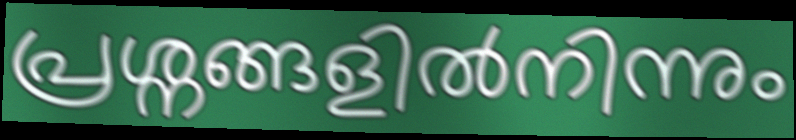
പ്രശ്നങ്ങളിൽനിന്നും